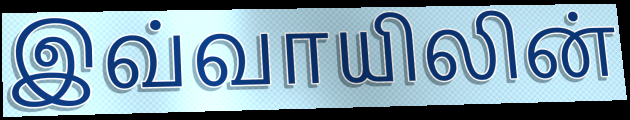
இவ்வாயிலின்